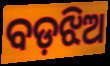
ବଡ଼ଝିଅ